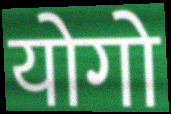
योगो